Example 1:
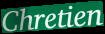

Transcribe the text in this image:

Chretien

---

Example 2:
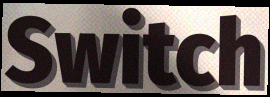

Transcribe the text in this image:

Switch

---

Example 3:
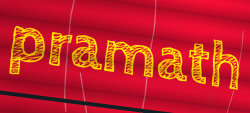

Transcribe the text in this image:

pramath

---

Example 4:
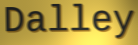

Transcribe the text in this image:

Dalley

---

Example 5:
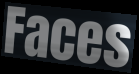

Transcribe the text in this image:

Faces